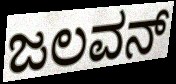
ಜಲವನ್